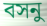
বসনু